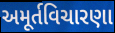
અમૂર્તવિચારણા